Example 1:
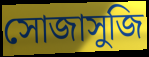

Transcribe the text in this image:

সোজাসুজি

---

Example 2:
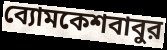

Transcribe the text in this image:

ব্যোমকেশবাবুর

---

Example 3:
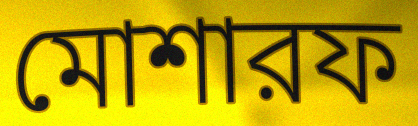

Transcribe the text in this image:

মোশারফ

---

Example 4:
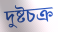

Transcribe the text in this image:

দুষ্টচক্র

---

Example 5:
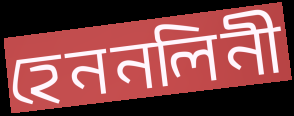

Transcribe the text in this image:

হেননলিনী